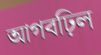
আগবঢ়িল